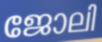
ജോലി